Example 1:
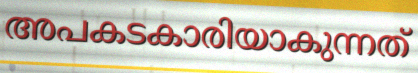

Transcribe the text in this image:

അപകടകാരിയാകുന്നത്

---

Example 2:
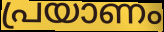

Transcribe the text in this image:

പ്രയാണം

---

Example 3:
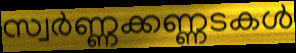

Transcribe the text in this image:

സ്വർണ്ണക്കണ്ണടകൾ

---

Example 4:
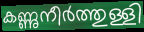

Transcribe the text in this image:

കണ്ണുനീർത്തുള്ളി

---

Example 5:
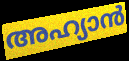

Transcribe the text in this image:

അഹ്യാൻ